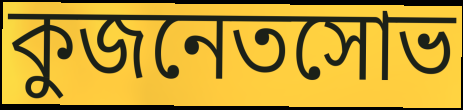
কুজনেতসোভ